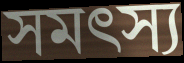
সমৎস্য